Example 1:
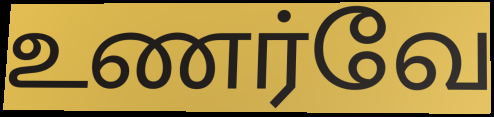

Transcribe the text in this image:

உணர்வே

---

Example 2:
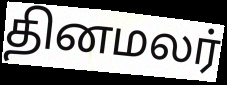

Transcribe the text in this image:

தினமலர்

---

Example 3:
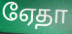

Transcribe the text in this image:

ஏேதா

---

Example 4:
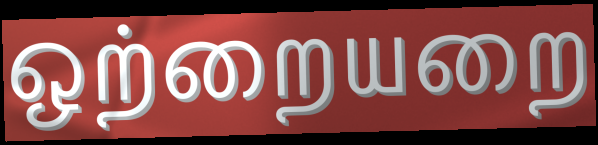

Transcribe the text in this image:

ஒற்றையறை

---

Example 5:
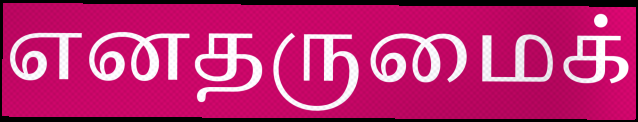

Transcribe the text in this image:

எனதருமைக்